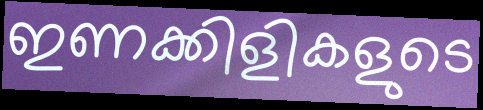
ഇണക്കിളികളുടെ